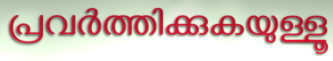
പ്രവർത്തിക്കുകയുള്ളൂ